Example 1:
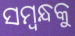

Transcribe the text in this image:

ସମ୍ବନ୍ଧକୁ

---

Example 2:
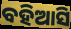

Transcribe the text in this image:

ବହିଆସି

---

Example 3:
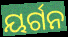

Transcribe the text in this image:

ୟର୍ଗନ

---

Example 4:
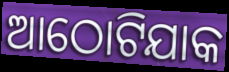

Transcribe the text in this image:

ଆଠୋଟିଯାକ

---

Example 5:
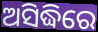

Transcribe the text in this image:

ଅସିଦ୍ଧିରେ